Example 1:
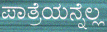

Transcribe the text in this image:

ಪಾತ್ರೆಯನ್ನೆಲ್ಲ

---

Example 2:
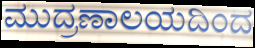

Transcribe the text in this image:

ಮುದ್ರಣಾಲಯದಿಂದ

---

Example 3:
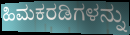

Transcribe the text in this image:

ಹಿಮಕರಡಿಗಳನ್ನು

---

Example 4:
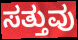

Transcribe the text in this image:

ಸತ್ತುವು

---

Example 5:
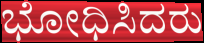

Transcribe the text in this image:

ಭೋಧಿಸಿದರು